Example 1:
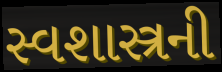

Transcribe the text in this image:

સ્વશાસ્ત્રની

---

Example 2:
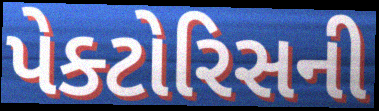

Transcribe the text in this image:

પેક્ટોરિસની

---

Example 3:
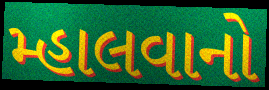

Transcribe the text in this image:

મ્હાલવાનો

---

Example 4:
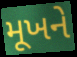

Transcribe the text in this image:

મૂખને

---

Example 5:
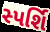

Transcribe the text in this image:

સ્પર્શિ